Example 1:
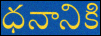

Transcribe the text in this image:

ధనానికి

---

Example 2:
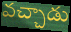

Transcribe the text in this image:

వచ్చాడు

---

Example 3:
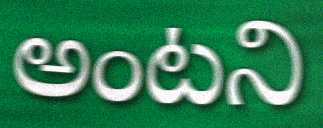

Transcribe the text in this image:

అంటని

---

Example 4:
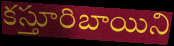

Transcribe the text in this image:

కస్తూరిబాయిని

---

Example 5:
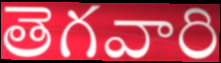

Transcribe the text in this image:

తెగవారి